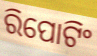
ରିପୋଟିଂ